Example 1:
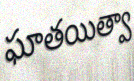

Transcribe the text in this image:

ఘాతయిత్వా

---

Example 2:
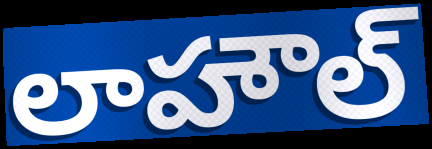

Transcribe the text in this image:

లాహౌల్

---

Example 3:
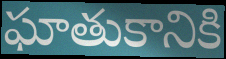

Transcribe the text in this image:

ఘాతుకానికి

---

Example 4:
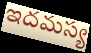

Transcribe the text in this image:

ఇదమస్య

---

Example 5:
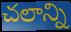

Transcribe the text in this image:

చలాన్ని